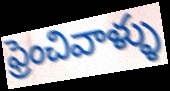
ఫ్రెంచివాళ్ళు